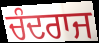
ਚੰਦਰਾਜ